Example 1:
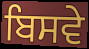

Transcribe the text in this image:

ਬਿਸਵੇ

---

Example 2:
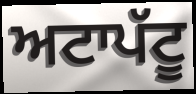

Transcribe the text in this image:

ਅਟਾਪੱਟੂ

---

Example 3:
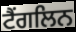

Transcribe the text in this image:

ਟੈਂਗਲਿਨ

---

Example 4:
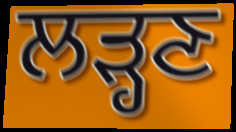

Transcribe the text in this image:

ਲੜ੍ਹਣ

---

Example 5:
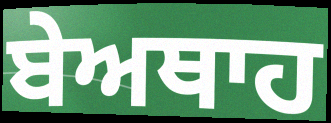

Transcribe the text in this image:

ਬੇਅਥਾਹ